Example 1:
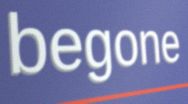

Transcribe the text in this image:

begone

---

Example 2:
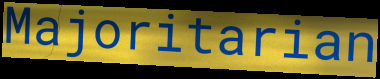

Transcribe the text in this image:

Majoritarian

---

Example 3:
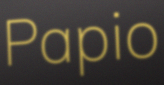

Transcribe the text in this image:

Papio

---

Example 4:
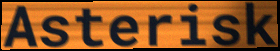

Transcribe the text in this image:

Asterisk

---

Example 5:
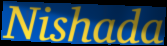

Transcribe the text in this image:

Nishada